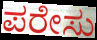
ಪರೇಸು